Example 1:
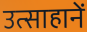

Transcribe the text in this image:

उत्साहानें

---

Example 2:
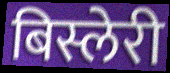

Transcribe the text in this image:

बिस्लेरी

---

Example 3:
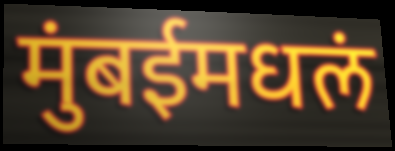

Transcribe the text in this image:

मुंबईमधलं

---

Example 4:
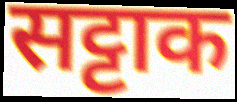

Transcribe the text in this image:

सट्टाक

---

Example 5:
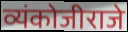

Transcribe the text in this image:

व्यंकोजीराजे